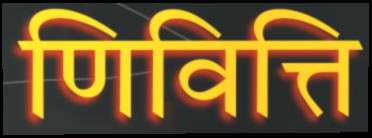
णिवित्ति